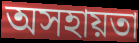
অসহায়তা